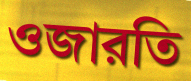
ওজারতি